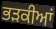
ਭੜਕੀਆਂ